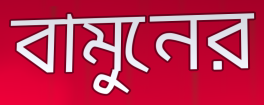
বামুনের